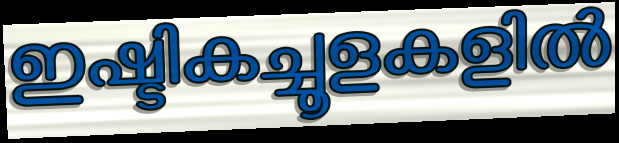
ഇഷ്ടികച്ചൂളകളിൽ